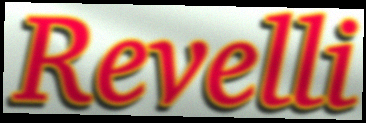
Revelli